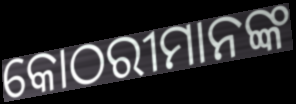
କୋଠରୀମାନଙ୍କ